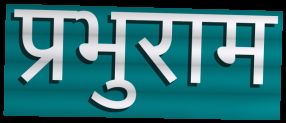
प्रभुराम